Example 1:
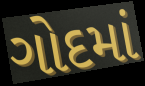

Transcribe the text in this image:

ગોદમાં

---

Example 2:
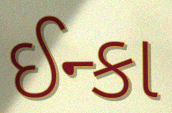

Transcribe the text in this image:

ઈન્કા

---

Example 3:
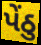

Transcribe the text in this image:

પેંઠુ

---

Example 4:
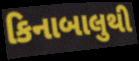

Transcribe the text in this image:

કિનાબાલુથી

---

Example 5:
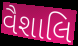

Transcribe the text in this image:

વૈશાલિ